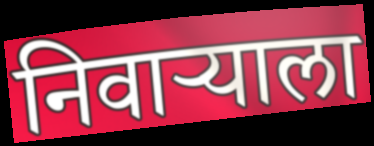
निवाऱ्याला